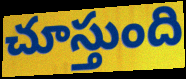
చూస్తుంది